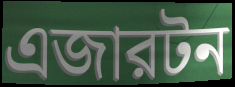
এজারটন